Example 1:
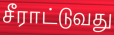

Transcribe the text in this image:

சீராட்டுவது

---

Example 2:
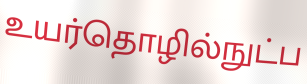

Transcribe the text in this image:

உயர்தொழில்நுட்ப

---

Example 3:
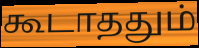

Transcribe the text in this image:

கூடாததும்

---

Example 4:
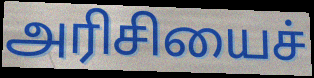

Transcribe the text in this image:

அரிசியைச்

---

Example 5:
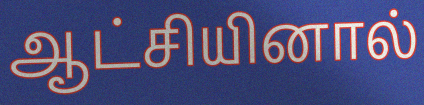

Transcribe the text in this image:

ஆட்சியினால்